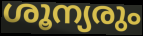
ശൂന്യരും